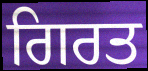
ਗਿਰਤ